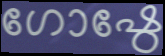
ഗോഷ്ഠേ